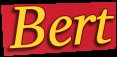
Bert